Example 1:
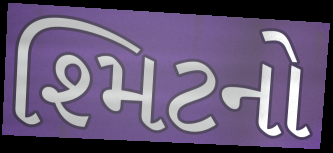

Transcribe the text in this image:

શ્મિટનો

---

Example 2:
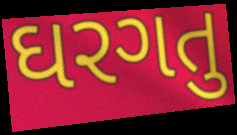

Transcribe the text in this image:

ઘરગતુ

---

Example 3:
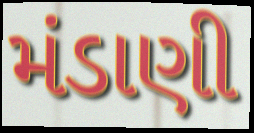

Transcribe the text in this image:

મંડાણી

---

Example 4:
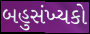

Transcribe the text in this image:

બહુસંખ્યકો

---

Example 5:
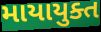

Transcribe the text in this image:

માયાયુક્ત